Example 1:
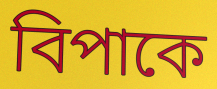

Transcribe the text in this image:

বিপাকে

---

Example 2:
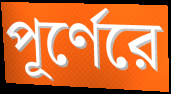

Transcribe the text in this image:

পূর্ণেরে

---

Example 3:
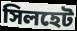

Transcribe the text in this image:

সিলহেট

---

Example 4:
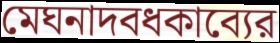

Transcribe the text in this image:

মেঘনাদবধকাব্যের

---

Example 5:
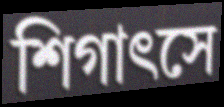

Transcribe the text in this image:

শিগাৎসে